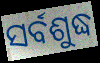
ସର୍ବଶୁଦ୍ଧ